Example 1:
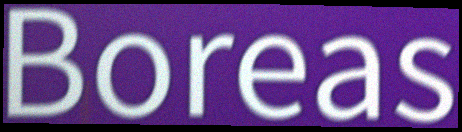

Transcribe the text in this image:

Boreas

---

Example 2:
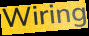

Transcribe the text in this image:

Wiring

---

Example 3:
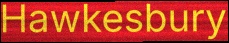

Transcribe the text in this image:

Hawkesbury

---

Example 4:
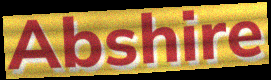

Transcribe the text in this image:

Abshire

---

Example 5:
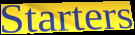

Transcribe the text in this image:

Starters